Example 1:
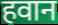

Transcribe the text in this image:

हवान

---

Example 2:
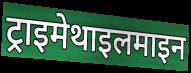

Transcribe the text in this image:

ट्राइमेथाइलमाइन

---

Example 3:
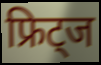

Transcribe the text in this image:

फ्रिट्ज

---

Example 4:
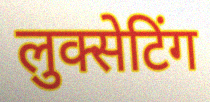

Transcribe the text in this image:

लुक्सेटिंग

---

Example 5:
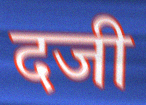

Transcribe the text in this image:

दजी